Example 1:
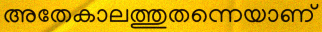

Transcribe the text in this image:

അതേകാലത്തുതന്നെയാണ്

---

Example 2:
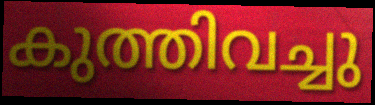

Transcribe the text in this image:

കുത്തിവച്ചു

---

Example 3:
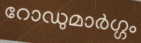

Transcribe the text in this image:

റോഡുമാർഗ്ഗം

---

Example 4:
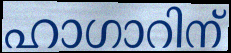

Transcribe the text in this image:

ഹാഗാറിന്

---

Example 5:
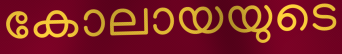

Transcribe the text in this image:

കോലായയുടെ